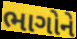
ભાગોને